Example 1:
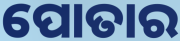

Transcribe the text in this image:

ପୋତାର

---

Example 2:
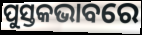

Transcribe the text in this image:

ପୁସ୍ତକଭାବରେ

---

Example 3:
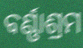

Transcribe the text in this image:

ବର୍ଣ୍ଣାଶ୍ରମ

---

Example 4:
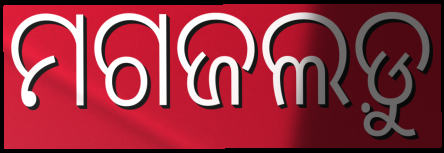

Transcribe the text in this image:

ମଗଜଲଡ଼ୁ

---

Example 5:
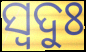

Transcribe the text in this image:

ସ୍ବଦୁଃ